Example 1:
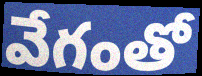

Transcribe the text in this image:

వేగంతో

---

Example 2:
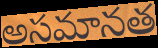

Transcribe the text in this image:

అసమానత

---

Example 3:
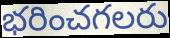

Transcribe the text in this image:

భరించగలరు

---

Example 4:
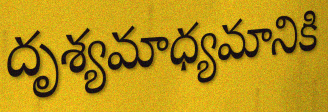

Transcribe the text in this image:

దృశ్యమాధ్యమానికి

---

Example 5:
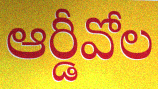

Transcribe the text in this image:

ఆర్డీవోల